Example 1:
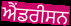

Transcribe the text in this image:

ਐਂਡਰੀਸਨ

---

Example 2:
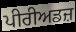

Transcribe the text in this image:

ਪੀਰੀਅਡਜ਼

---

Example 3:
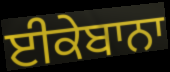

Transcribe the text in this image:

ਈਕੇਬਾਨਾ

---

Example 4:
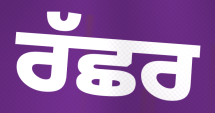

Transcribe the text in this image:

ਰੱਛਰ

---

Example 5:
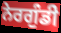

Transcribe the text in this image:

ਨੇਰਗੁੰਡੀ